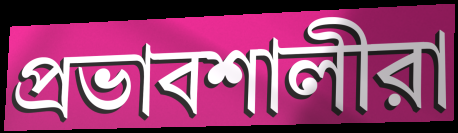
প্রভাবশালীরা